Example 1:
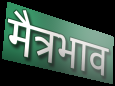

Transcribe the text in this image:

मैत्रभाव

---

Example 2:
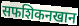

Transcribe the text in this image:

सफशिकनखान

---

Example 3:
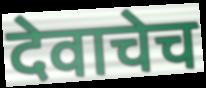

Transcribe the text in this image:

देवाचेच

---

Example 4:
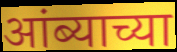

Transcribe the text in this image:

आंब्याच्या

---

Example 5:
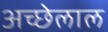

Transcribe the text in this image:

अच्छेलाल